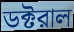
ডক্টরাল